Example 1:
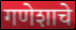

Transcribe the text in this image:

गणेशाचे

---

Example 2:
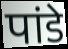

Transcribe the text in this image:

पांडे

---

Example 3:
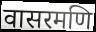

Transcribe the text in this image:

वासरमणि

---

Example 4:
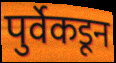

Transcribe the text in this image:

पुर्वेकडून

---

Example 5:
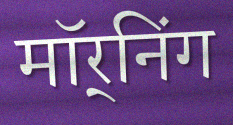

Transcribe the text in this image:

मॉर्निंग